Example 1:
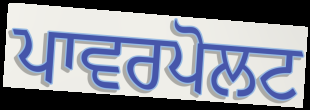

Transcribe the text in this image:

ਪਾਵਰਪੋਲਟ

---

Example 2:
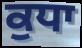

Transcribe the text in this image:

ਕੁਧਾ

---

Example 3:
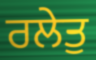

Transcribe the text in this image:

ਰਲੇਤੁ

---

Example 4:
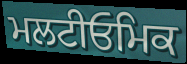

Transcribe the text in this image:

ਮਲਟੀਓਮਿਕ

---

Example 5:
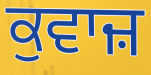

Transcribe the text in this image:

ਕੁਵਾਜ਼